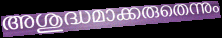
അശുദ്ധമാക്കരുതെന്നും